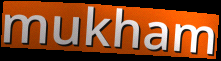
mukham